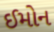
ઈમોન